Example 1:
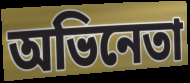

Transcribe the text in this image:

অভিনেতা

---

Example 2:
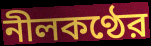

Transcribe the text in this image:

নীলকণ্ঠের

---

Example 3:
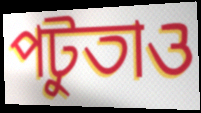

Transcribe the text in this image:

পটুতাও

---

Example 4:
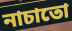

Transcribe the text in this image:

নাচাতো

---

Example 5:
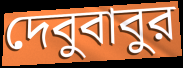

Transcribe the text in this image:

দেবুবাবুর